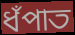
ধঁপাত